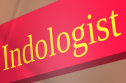
Indologist